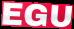
EGU